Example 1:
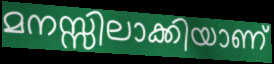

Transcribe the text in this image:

മനസ്സിലാക്കിയാണ്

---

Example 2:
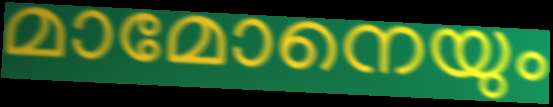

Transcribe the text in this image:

മാമോനെയും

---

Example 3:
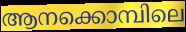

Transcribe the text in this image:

ആനക്കൊമ്പിലെ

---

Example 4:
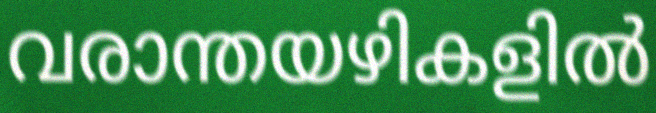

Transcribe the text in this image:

വരാന്തയഴികളിൽ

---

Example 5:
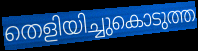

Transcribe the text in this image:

തെളിയിച്ചുകൊടുത്ത